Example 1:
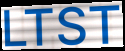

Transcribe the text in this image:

LTST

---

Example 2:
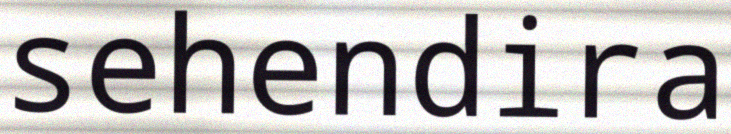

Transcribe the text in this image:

sehendira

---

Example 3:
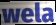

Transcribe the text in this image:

wela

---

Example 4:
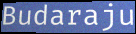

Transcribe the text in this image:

Budaraju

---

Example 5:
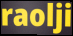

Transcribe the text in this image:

raolji